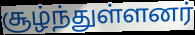
சூழ்ந்துள்ளனர்